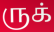
ருக்